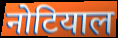
नोटियाल